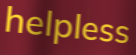
helpless